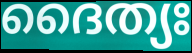
ദൈത്യഃ